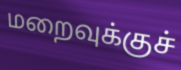
மறைவுக்குச்